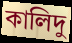
কালিদু